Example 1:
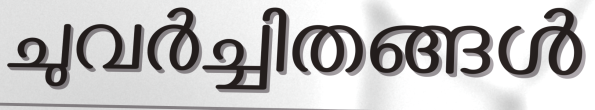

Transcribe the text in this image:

ചുവർച്ചിതങ്ങൾ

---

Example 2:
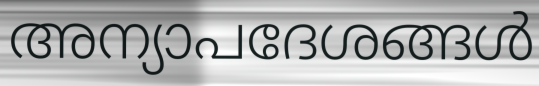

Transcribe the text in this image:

അന്യാപദേശങ്ങൾ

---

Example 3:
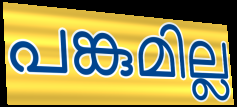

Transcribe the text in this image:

പങ്കുമില്ല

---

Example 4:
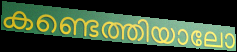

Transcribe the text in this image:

കണ്ടെത്തിയാലോ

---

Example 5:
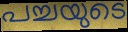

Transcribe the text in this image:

പച്ചയുടെ